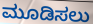
ಮೂಡಿಸಲು